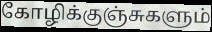
கோழிக்குஞ்சுகளும்